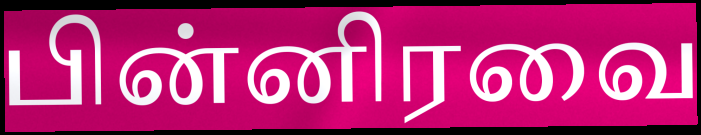
பின்னிரவை